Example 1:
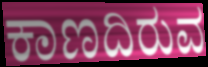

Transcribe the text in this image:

ಕಾಣದಿರುವ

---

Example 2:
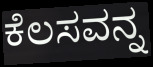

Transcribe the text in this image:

ಕೆಲಸವನ್ನ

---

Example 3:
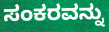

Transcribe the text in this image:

ಸಂಕರವನ್ನು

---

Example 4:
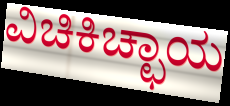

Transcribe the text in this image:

ವಿಚಿಕಿಚ್ಛಾಯ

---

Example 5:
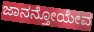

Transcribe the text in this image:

ಜಾನನ್ತೋಯೇವ